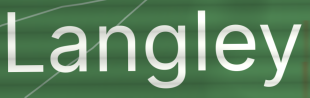
Langley